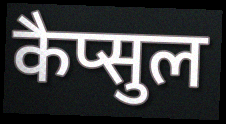
कैप्सुल